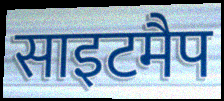
साइटमैप